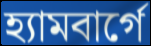
হ্যামবার্গে